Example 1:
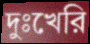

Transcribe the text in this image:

দুঃখেরি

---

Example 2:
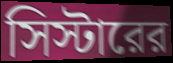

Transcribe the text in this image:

সিস্টারের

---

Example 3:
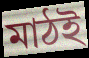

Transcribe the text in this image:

মাঠই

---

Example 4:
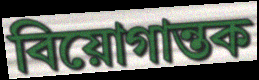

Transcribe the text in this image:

বিয়োগান্তক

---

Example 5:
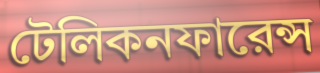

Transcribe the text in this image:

টেলিকনফারেন্স